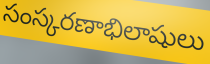
సంస్కరణాభిలాషులు